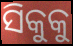
ସିକୁକୁ